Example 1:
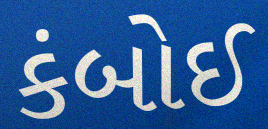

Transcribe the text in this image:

કંબોઈ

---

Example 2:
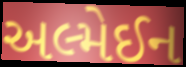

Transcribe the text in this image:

અલ્મેઈન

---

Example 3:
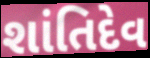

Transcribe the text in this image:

શાંતિદેવ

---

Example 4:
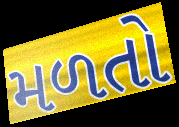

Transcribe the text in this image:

મળતો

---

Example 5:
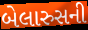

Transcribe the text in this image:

બેલારુસની